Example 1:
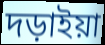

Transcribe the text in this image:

দড়াইয়া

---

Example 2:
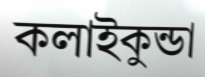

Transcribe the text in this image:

কলাইকুন্ডা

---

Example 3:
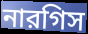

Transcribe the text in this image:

নারগিস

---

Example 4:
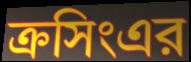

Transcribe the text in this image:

ক্রসিংএর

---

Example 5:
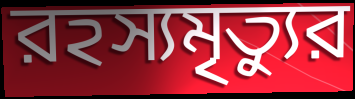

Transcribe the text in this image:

রহস্যমৃত্যুর